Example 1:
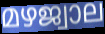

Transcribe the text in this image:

മഴജ്വാല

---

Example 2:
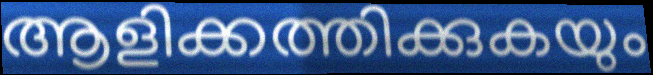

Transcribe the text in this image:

ആളിക്കത്തിക്കുകയും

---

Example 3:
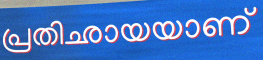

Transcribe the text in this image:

പ്രതിഛായയാണ്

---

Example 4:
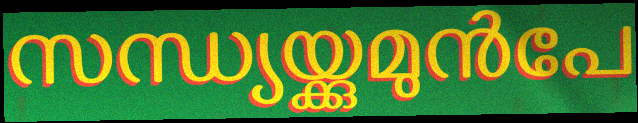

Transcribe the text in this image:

സന്ധ്യയ്ക്കുമുൻപേ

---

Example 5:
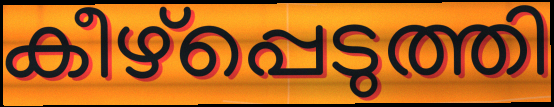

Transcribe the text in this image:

കീഴ്പ്പെടുത്തി